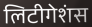
लिटीगेशंस